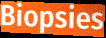
Biopsies